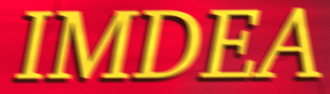
IMDEA